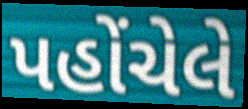
પહોંચેલે